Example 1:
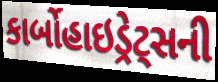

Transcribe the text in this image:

કાર્બોહાઇડ્રેટ્સની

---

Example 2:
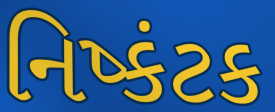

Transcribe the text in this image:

નિષ્કંટક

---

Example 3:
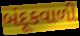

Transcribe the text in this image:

બંદૂકવાળી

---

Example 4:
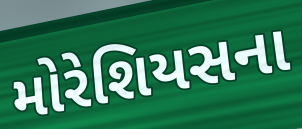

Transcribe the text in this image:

મોરેશિયસના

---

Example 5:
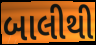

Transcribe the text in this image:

બાલીથી